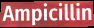
Ampicillin